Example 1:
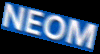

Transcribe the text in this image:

NEOM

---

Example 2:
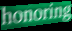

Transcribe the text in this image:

honoring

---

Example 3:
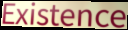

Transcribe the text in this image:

Existence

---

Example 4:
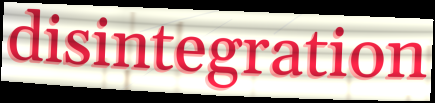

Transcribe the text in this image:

disintegration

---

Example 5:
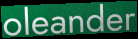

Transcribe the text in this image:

oleander